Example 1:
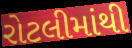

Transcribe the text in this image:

રોટલીમાંથી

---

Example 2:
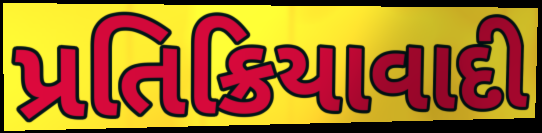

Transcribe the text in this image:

પ્રતિક્રિયાવાદી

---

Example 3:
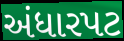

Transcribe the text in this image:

અંધારપટ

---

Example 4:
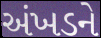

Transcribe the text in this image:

અંખડને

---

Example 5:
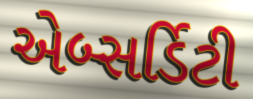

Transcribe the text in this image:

એબ્સર્ડિટી